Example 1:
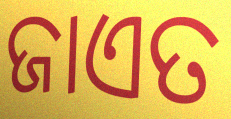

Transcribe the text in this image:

ଜାଏତ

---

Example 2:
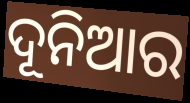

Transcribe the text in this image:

ଦୂନିଆର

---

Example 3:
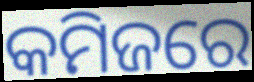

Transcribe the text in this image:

କମିଜରେ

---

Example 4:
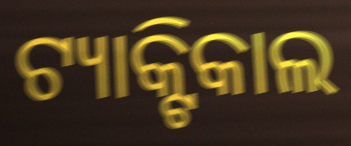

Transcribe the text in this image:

ଟ୍ୟାକ୍ଟିକାଲ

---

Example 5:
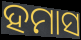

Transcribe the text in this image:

ହମାସ